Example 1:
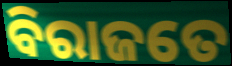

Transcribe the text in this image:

ବିରାଜତେ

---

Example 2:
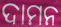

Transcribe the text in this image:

ଦାମନ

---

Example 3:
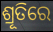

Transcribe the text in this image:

ଶ୍ରୂତିରେ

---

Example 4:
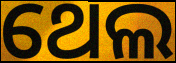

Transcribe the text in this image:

ଥେଲ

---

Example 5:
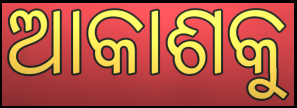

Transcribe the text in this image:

ଆକାଶକୁ